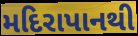
મદિરાપાનથી